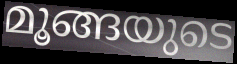
മൂങ്ങയുടെ